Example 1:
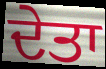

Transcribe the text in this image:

ਦੇਤਾ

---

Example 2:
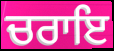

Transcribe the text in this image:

ਚਰਾਇ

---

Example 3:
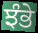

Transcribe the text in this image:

ਝੰਭੇ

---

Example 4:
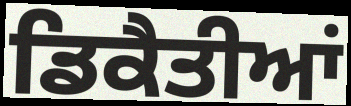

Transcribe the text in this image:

ਡਿਕੈਤੀਆਂ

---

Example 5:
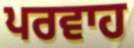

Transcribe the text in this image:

ਪਰਵਾਹ